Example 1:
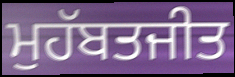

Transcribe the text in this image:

ਮੁਹੱਬਤਜੀਤ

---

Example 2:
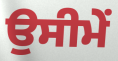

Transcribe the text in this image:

ਉਸੀਮੇਂ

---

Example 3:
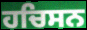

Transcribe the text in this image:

ਹਚਿਸਨ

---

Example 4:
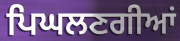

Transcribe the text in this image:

ਪਿਘਲਣਗੀਆਂ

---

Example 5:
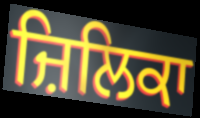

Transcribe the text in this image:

ਜ਼ਿਲਿਕਾ